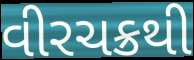
વીરચક્રથી